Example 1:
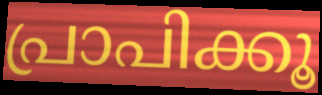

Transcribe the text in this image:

പ്രാപിക്കൂ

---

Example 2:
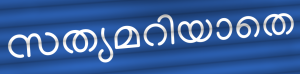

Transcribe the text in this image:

സത്യമറിയാതെ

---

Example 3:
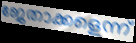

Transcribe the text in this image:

ജേതാക്കളെന്ന്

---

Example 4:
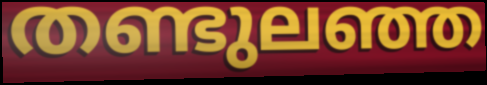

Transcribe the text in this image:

തണ്ടുലഞ്ഞ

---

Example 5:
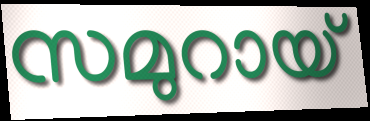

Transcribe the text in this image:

സമുറായ്